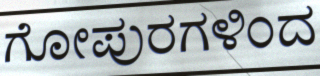
ಗೋಪುರಗಳಿಂದ